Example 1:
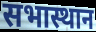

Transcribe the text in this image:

सभास्थान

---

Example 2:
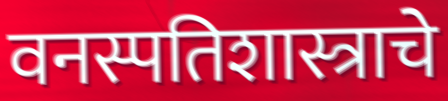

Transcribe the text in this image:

वनस्पतिशास्त्राचे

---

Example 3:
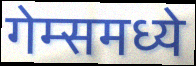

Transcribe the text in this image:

गेम्समध्ये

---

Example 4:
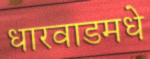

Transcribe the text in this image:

धारवाडमधे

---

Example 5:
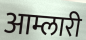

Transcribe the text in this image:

आम्लारी